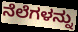
ನೆಲೆಗಳನ್ನು